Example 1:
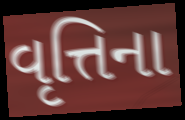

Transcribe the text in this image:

વૃત્તિના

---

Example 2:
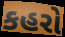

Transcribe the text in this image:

કહરો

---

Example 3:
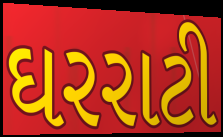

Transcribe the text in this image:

ઘરરાટી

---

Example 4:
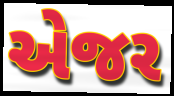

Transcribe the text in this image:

એજર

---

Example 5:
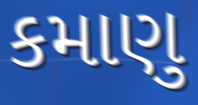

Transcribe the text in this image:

કમાણુ